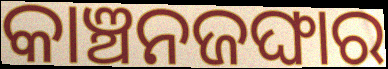
କାଞ୍ଚନଜଙ୍ଘାର